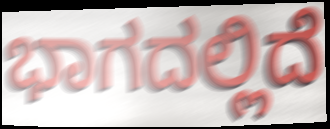
ಭಾಗದಲ್ಲಿದೆ